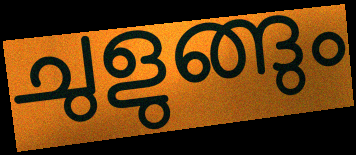
ചുളുങ്ങും